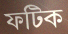
ফটিক